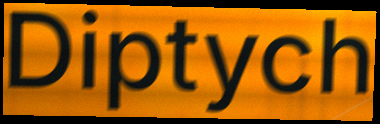
Diptych